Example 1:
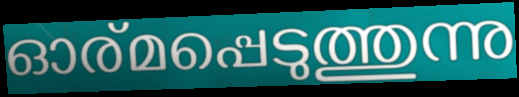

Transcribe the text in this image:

ഓര്മപ്പെടുത്തുന്നു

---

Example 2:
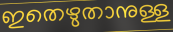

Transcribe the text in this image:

ഇതെഴുതാനുള്ള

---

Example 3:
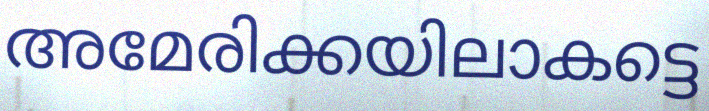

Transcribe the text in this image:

അമേരിക്കയിലാകട്ടെ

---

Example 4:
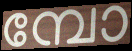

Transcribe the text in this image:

മ്പോ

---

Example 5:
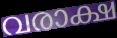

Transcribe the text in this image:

വരാക്ഷ